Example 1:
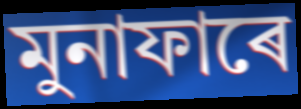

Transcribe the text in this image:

মুনাফাৰে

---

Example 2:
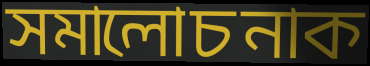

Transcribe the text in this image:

সমালোচনাক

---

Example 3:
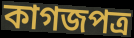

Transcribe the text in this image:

কাগজপত্ৰ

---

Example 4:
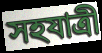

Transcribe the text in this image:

সহযাত্ৰী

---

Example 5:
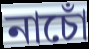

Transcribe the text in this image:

নাচোঁ